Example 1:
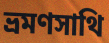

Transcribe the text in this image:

ভ্রমণসাথি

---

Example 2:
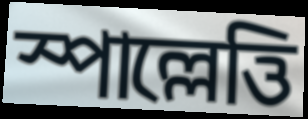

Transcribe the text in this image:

স্পাল্লেত্তি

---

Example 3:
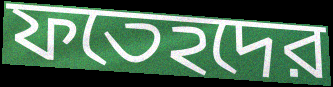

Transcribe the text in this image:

ফতেহদের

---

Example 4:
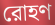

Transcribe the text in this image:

রোহণ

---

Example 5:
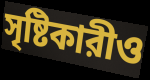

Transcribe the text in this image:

সৃষ্টিকারীও